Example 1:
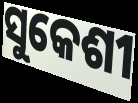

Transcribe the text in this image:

ସୁକେଶୀ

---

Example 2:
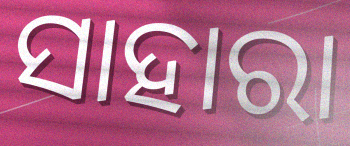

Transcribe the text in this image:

ସାହାରା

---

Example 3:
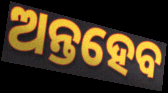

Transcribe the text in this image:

ଅନ୍ତହେବ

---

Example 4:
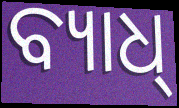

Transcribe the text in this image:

ବ୍ୟାଧ୍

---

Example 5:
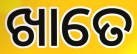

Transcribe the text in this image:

ଖାତେ